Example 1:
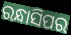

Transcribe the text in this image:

ରନ୍ଧାସିପର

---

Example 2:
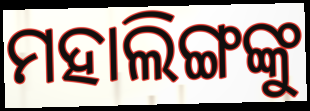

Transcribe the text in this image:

ମହାଲିଙ୍ଗଙ୍କୁ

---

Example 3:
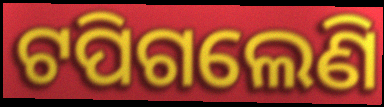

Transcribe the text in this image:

ଟପିଗଲେଣି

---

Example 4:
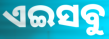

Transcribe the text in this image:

ଏଇସବୁ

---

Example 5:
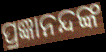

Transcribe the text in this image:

ପ୍ରଜ୍ଞାନନ୍ଦଙ୍କ